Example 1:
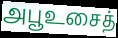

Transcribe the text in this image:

அபூஉசைத்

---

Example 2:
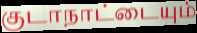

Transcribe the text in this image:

குடாநாட்டையும்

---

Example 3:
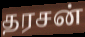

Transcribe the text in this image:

தரசன்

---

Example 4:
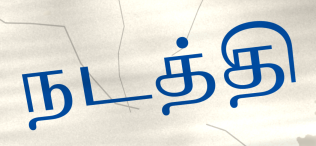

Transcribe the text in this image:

நடத்தி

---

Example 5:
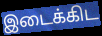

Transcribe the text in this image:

இடைக்கிட